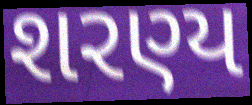
શરણ્ય